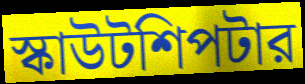
স্কাউটশিপটার